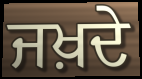
ਜਖ਼ਦੇ